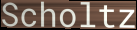
Scholtz